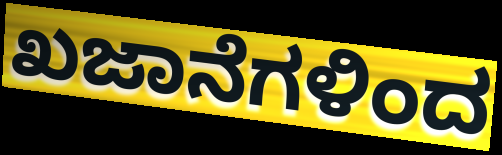
ಖಜಾನೆಗಳಿಂದ